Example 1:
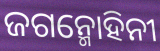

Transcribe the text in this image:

ଜଗନ୍ମୋହିନୀ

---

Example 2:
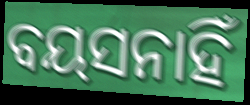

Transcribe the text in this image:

ବୟସନାହିଁ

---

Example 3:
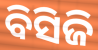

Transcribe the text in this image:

ବିସିଜି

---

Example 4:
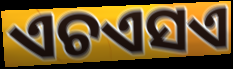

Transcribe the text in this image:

ଏଚଏସଏ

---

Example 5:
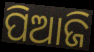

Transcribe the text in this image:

ପିଆଜି